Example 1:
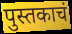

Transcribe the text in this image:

पुस्तकाचं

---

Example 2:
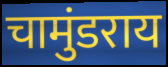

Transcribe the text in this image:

चामुंडराय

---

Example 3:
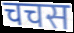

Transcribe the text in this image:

चचस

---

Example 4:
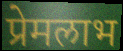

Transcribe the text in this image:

प्रेमलाभ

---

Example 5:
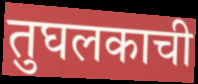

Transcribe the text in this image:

तुघलकाची